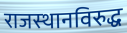
राजस्थानविरुद्ध